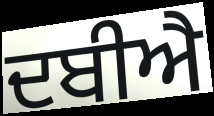
ਦਬੀਐ